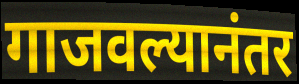
गाजवल्यानंतर